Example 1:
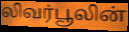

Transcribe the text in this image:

லிவர்பூலின்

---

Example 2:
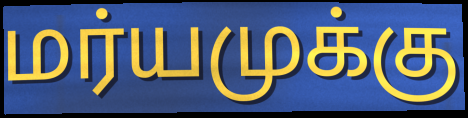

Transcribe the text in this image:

மர்யமுக்கு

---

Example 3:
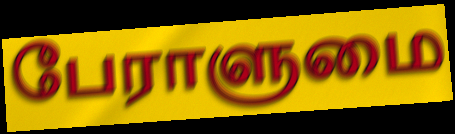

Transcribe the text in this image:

பேராளுமை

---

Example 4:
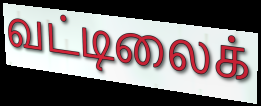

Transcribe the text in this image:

வட்டிலைக்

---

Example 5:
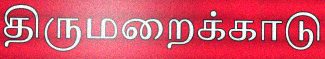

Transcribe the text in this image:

திருமறைக்காடு